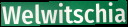
Welwitschia